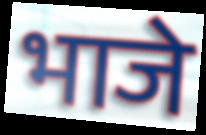
भाजे